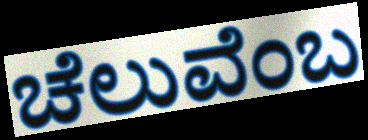
ಚೆಲುವೆಂಬ